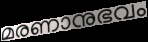
മരണാനുഭവം